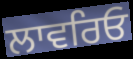
ਲਾਵਰਿਓ